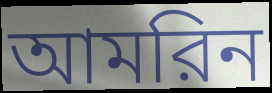
আমরিন